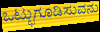
ಒಟ್ಟುಗೂಡಿಸುವನು